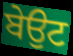
ਬੇਉਟ